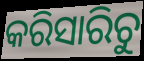
କରିସାରିଚୁ